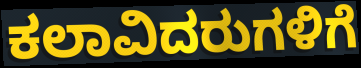
ಕಲಾವಿದರುಗಳಿಗೆ